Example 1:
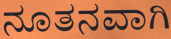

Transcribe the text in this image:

ನೂತನವಾಗಿ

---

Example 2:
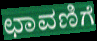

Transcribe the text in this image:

ಛಾವಣಿಗೆ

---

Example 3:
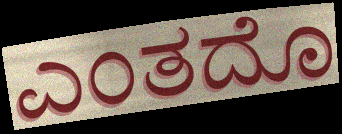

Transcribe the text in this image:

ಎಂತದೊ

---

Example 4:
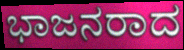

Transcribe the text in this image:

ಭಾಜನರಾದ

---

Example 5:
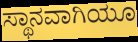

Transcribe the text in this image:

ಸ್ಥಾನವಾಗಿಯೂ